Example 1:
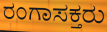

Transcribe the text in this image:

ರಂಗಾಸಕ್ತರು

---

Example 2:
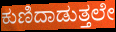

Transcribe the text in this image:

ಕುಣಿದಾಡುತ್ತಲೇ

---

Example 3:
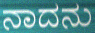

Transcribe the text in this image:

ನಾದನು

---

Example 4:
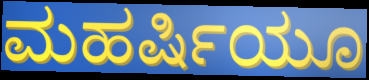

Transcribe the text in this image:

ಮಹರ್ಷಿಯೂ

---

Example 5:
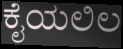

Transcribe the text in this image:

ಕೈಯಲಿಲ